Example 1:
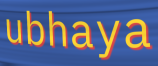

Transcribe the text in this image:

ubhaya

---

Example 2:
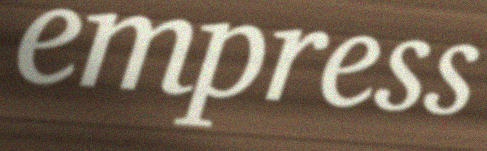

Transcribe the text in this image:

empress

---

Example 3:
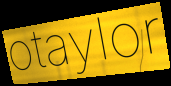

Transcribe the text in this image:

otaylor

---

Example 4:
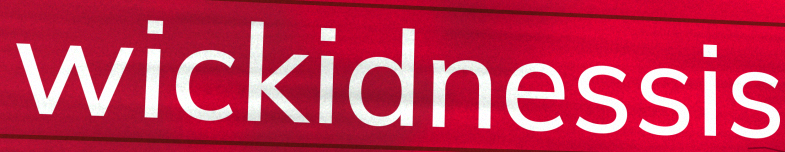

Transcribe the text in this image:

wickidnessis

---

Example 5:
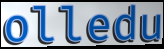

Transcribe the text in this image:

olledu